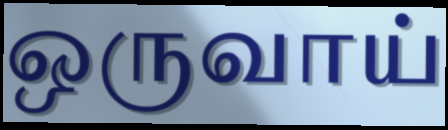
ஒருவாய்